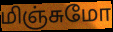
மிஞ்சுமோ